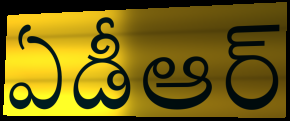
ఏడీఆర్